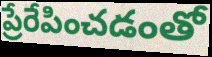
ప్రేరేపించడంతో